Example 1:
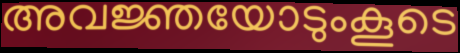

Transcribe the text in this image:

അവജ്ഞയോടുംകൂടെ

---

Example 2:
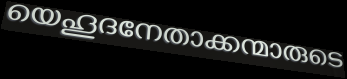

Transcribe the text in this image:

യെഹൂദനേതാക്കന്മാരുടെ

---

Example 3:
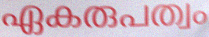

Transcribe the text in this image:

ഏകരുപത്വം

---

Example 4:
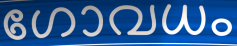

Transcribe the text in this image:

ഗോവധം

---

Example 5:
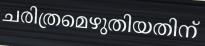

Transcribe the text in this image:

ചരിത്രമെഴുതിയതിന്